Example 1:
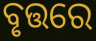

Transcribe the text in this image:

ବୃତ୍ତରେ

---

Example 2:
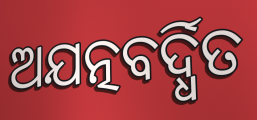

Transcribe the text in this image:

ଅଯତ୍ନବର୍ଦ୍ଧିତ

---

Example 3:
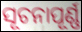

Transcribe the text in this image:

ସୂଚନାପୂର୍ଣ୍ଣ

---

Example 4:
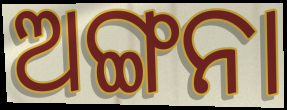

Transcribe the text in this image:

ଅଙ୍ଗନା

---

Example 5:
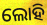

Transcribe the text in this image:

ଲୋହି